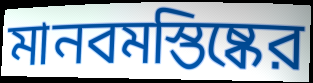
মানবমস্তিষ্কের